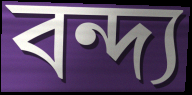
বন্দ্য